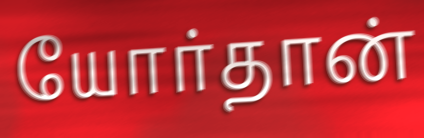
யோர்தான்